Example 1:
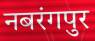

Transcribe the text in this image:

नबरंगपुर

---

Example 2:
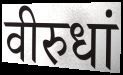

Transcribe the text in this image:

वीरुधां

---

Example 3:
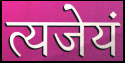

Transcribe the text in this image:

त्यजेयं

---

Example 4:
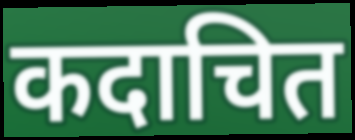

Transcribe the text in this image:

कदाचित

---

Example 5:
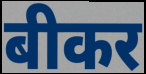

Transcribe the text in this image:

बीकर